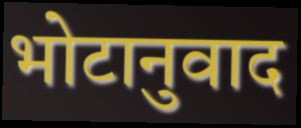
भोटानुवाद